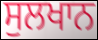
ਸੁਲਖਾਨ